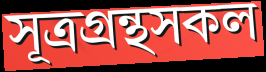
সূত্রগ্রন্থসকল